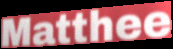
Matthee